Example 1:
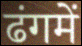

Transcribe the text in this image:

ढंगमें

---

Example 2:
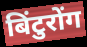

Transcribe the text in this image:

बिंटुरोंग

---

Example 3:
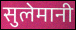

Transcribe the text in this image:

सुलेमानी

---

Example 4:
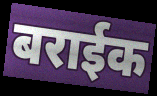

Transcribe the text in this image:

बराईक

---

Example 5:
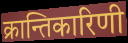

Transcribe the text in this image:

क्रान्तिकारिणी